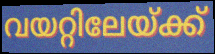
വയറ്റിലേയ്ക്ക്